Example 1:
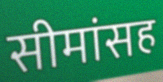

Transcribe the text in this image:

सीमांसह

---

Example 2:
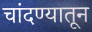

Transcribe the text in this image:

चांदण्यातून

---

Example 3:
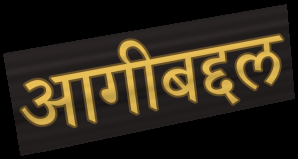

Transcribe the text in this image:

आगीबद्दल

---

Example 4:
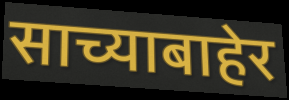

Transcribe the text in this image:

साच्याबाहेर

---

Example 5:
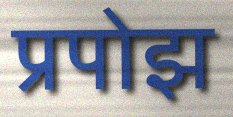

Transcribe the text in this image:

प्रपोझ